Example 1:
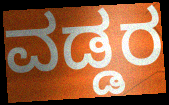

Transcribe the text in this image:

ವಡ್ಡರ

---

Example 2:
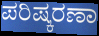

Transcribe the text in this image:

ಪರಿಷ್ಕರಣಾ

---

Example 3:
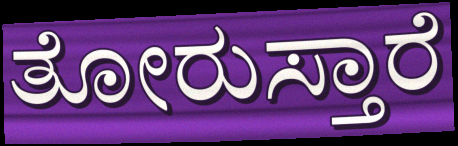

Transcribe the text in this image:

ತೋರುಸ್ತಾರೆ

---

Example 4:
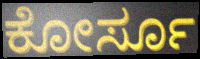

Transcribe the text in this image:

ಕೋರ್ಸೂ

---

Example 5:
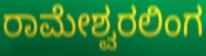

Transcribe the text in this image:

ರಾಮೇಶ್ವರಲಿಂಗ